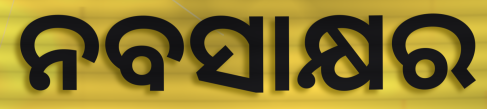
ନବସାକ୍ଷର